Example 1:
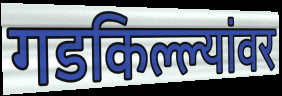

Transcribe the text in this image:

गडकिल्ल्यांवर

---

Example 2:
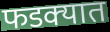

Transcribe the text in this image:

फडक्‍यात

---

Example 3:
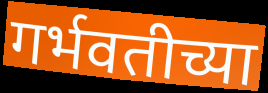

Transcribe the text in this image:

गर्भवतीच्या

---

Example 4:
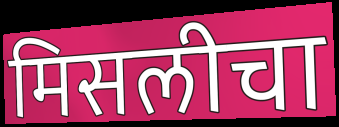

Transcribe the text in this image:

मिसलीचा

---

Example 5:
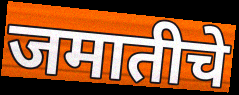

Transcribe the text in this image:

जमातीचे